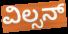
ವಿಲ್ಸನ್